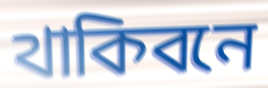
থাকিবনে